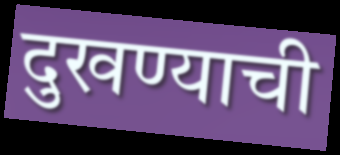
दुखण्याची